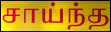
சாய்ந்த